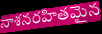
నాశనరహితమైన